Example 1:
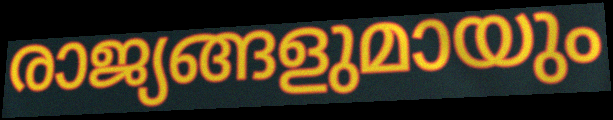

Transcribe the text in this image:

രാജ്യങ്ങളുമായും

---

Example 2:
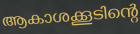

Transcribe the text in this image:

ആകാശക്കൂടിന്റെ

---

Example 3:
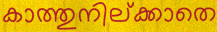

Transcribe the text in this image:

കാത്തുനില്ക്കാതെ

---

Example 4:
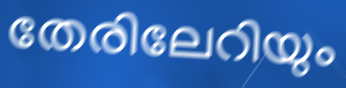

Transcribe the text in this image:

തേരിലേറിയും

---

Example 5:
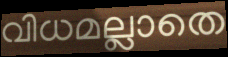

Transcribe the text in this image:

വിധമല്ലാതെ